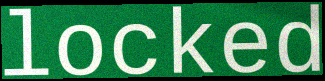
locked